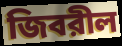
জিবরীল